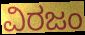
ವಿರಜಂ